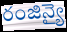
రంజిన్యై